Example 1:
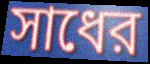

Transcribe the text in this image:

সাধের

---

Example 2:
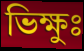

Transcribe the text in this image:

ভিক্ষুঃ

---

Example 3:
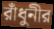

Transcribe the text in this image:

রাঁধুনীর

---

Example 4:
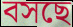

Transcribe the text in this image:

বসছে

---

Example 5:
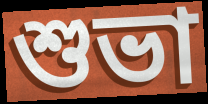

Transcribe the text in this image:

শুভা